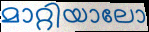
മാറ്റിയാലോ